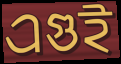
এগুই